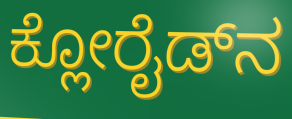
ಕ್ಲೋರೈಡ್‍ನ